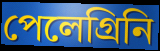
পেলেগ্রিনি